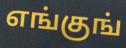
எங்குங்